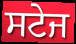
ਸਟੇਜ